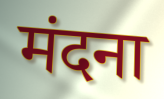
मंदना